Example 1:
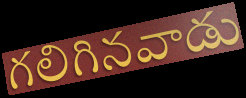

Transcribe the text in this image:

గలిగినవాడు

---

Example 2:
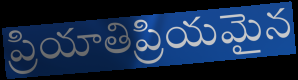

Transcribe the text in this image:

ప్రియాతిప్రియమైన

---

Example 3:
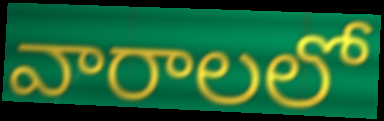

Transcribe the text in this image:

వారాలలో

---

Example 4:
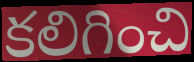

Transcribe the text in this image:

కలిగించి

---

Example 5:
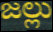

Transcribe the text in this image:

జల్లు